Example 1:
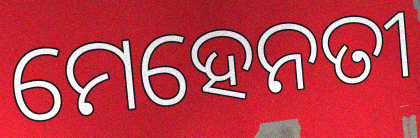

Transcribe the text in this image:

ମେହେନତୀ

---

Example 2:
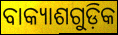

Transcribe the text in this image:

ବାକ୍ୟାଶଗୁଡ଼ିକ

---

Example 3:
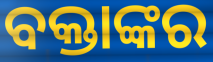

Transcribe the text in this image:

ବକ୍ତାଙ୍କର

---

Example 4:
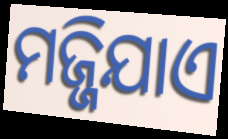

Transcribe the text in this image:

ମଜ୍ଜିଯାଏ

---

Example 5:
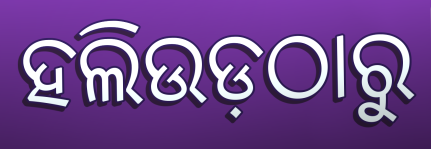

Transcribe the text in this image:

ହଲିଉଡ଼ଠାରୁ